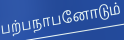
பற்பநாபனோடும்